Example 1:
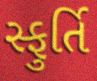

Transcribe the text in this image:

સ્ફુર્તિ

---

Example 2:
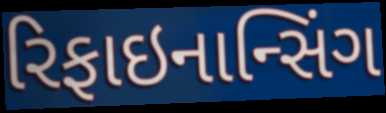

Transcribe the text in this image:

રિફાઇનાન્સિંગ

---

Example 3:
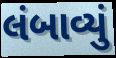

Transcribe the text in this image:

લંબાવ્યું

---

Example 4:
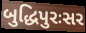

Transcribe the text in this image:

બુદ્ધિપુરઃસર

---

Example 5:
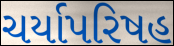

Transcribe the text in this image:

ચર્યાપરિષહ